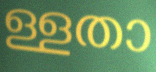
ള്ളതാ